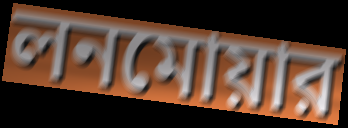
লনমোয়ার